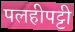
पलहीपट्टी